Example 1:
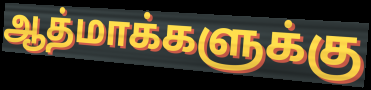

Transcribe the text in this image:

ஆத்மாக்களுக்கு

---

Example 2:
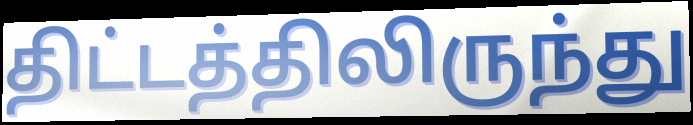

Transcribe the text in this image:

திட்டத்திலிருந்து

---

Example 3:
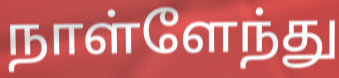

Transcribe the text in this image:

நாள்ளேந்து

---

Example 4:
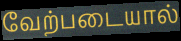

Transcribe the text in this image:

வேற்படையால்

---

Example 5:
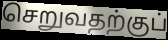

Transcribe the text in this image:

செறுவதற்குப்